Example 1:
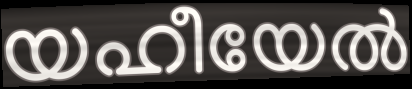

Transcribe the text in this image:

യഹീയേൽ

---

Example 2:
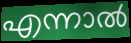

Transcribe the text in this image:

എന്നാൽ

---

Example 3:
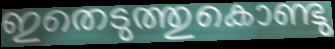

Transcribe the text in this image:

ഇതെടുത്തുകൊണ്ടു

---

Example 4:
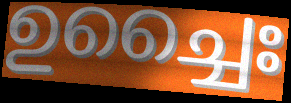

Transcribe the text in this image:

ഉച്ചൈഃ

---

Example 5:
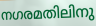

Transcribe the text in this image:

നഗരമതിലിനു